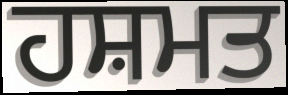
ਹਸ਼ਮਤ